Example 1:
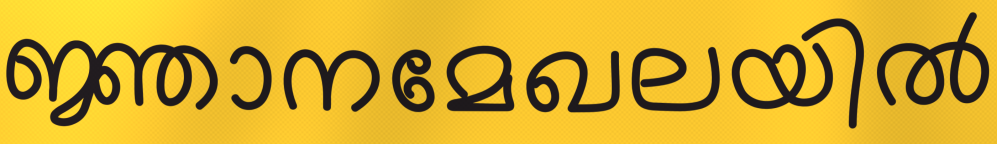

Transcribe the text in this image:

ജ്ഞാനമേഖലയിൽ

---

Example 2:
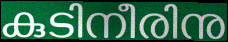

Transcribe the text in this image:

കുടിനീരിനു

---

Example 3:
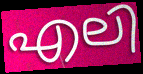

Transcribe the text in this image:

എലി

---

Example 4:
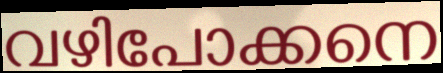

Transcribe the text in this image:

വഴിപോക്കനെ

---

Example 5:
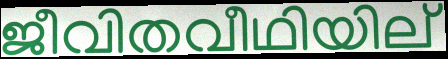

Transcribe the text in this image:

ജീവിതവീഥിയില്